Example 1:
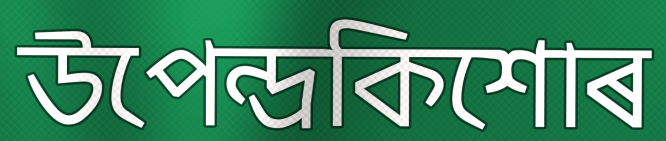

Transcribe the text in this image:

উপেন্দ্ৰকিশোৰ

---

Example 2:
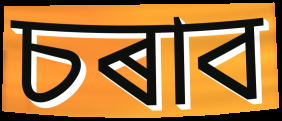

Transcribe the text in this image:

চৰাব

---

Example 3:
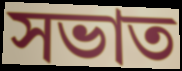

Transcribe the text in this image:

সভাত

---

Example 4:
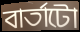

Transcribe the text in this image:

বাৰ্তাটো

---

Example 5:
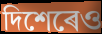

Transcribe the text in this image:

দিশেৰেও